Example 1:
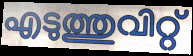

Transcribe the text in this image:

എടുത്തുവിറ്റ്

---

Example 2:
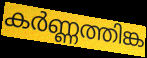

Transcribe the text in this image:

കർണ്ണത്തിങ്ക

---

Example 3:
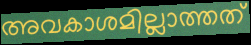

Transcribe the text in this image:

അവകാശമില്ലാത്തത്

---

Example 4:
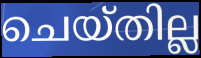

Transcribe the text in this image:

ചെയ്തില്ല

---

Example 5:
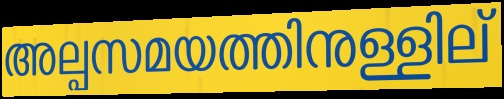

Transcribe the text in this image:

അല്പസമയത്തിനുള്ളില്